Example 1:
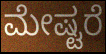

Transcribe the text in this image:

ಮೇಷ್ಟರೆ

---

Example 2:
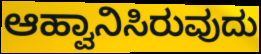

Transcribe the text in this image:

ಆಹ್ವಾನಿಸಿರುವುದು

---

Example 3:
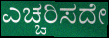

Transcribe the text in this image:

ಎಚ್ಚರಿಸದೇ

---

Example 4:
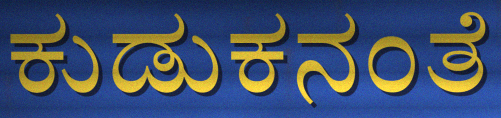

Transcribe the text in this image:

ಕುಡುಕನಂತೆ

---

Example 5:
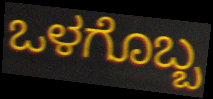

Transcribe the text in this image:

ಒಳಗೊಬ್ಬ